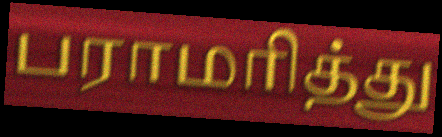
பராமரித்து